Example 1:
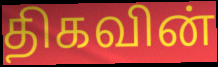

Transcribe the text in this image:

திகவின்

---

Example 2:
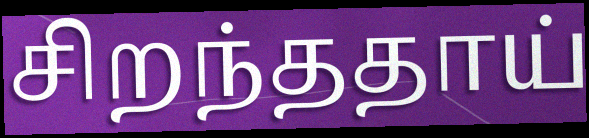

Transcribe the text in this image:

சிறந்ததாய்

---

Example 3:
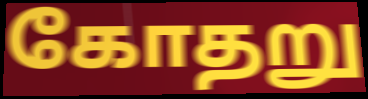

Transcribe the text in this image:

கோதறு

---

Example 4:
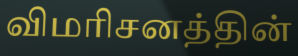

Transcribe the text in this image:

விமரிசனத்தின்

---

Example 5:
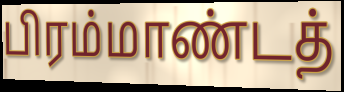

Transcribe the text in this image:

பிரம்மாண்டத்